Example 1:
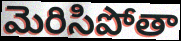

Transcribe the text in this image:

మెరిసిపోతా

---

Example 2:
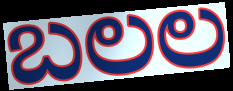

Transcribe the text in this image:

బలల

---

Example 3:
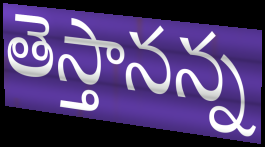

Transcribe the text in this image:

తెస్తానన్న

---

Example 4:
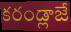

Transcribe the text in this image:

కరండ్లాజే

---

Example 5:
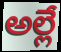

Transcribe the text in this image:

అల్లే